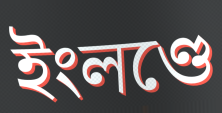
ইংলণ্ডে